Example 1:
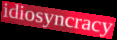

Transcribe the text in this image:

idiosyncracy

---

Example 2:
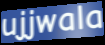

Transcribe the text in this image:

ujjwala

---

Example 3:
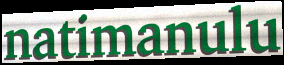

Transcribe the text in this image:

natimanulu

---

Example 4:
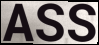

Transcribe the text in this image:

ASS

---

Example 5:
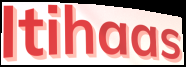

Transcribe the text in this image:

Itihaas